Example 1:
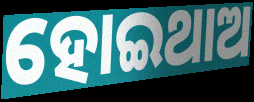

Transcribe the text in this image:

ହୋଇଥାଅ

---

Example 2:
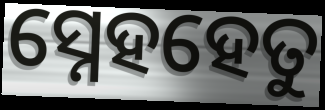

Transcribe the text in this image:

ସ୍ନେହହେତୁ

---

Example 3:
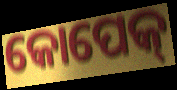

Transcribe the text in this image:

କୋପେକ୍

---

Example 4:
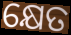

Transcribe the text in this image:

କ୍ଷେତ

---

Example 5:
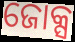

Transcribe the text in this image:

ଜୋକ୍ସ